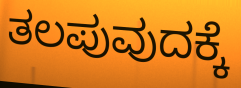
ತಲಪುವುದಕ್ಕೆ